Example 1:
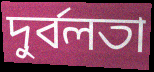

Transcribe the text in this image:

দুর্বলতা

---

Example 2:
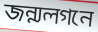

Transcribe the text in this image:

জন্মলগনে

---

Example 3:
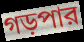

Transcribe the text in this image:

গড়পার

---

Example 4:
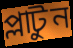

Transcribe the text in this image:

প্লাটুন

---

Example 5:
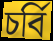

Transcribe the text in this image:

চর্বি